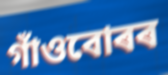
গাঁওবোৰৰ